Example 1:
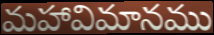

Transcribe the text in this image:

మహావిమానము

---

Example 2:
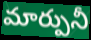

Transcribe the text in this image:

మార్పునీ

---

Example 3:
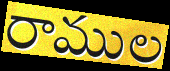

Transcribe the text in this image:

రాముల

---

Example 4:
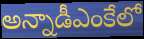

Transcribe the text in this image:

అన్నాడీఎంకేలో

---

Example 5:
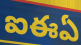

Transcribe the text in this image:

ఐఈఏ